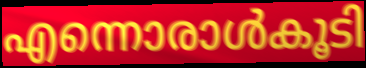
എന്നൊരാൾകൂടി